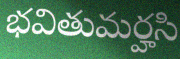
భవితుమర్హసి